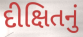
દીક્ષિતનું